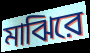
মাঝিরে